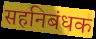
सहनिबंधक